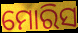
ମୋରିସ